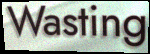
Wasting